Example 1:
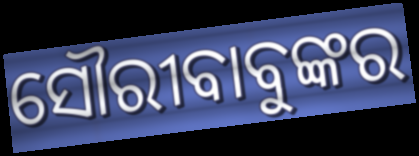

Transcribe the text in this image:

ସୌରୀବାବୁଙ୍କର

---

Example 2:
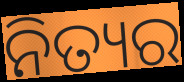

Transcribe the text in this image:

ନିତ୍ୟର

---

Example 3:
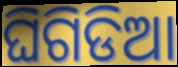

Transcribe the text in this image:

ଘିଗିଡିଆ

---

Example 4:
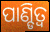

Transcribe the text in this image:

ପାଣ୍ଡିତ୍ୱ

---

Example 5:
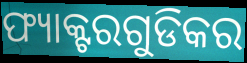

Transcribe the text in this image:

ଫ୍ୟାକ୍ଟରଗୁଡିକର